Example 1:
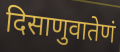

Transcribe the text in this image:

दिसाणुवातेणं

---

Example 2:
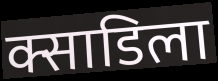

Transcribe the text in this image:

क्साडिला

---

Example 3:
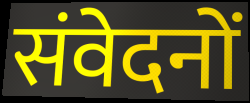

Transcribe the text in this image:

संवेदनों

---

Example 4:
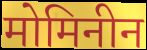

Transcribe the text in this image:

मोमिनीन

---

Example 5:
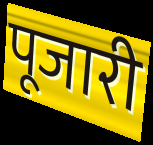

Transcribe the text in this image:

पूजारी